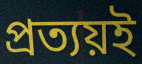
প্রত্যয়ই